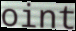
oint